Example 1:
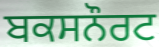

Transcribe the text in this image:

ਬਕਸਨੌਰਟ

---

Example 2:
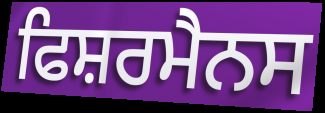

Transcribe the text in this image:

ਫਿਸ਼ਰਮੈਨਸ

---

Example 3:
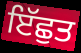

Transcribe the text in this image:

ਇੱਛੁਤ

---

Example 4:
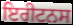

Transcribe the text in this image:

ਇਰੀਟਨਸ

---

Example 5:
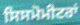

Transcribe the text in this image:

ਸਿਸਮੋਮੀਟਰਾਂ